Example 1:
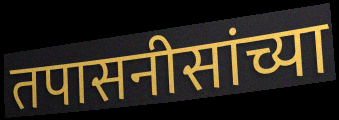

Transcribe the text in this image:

तपासनीसांच्या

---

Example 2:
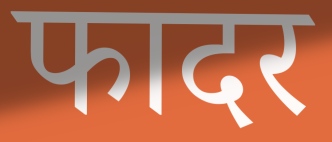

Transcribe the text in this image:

फादर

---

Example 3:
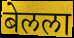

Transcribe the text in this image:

बेलला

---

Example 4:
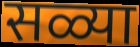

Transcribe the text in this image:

सळ्या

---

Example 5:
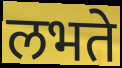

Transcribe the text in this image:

लभते